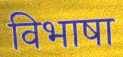
विभाषा